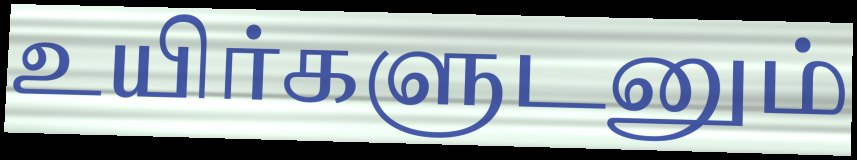
உயிர்களுடனும்